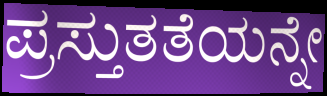
ಪ್ರಸ್ತುತತೆಯನ್ನೇ